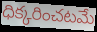
ధిక్కరించటమే